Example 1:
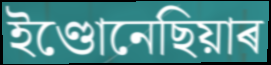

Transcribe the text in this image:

ইণ্ডোনেছিয়াৰ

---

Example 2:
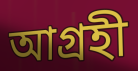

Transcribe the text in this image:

আগ্ৰহী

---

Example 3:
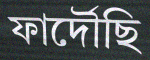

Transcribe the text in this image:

ফাৰ্দৌছি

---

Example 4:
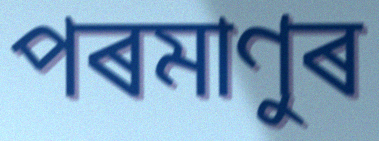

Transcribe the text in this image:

পৰমাণুৰ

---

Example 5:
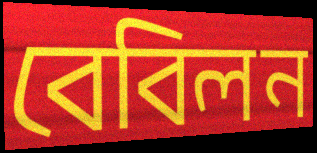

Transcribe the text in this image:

বেবিলন